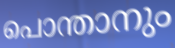
പൊന്താനും